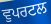
ਵੁਪਰਟਲ